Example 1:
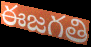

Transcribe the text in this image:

ఈజగతి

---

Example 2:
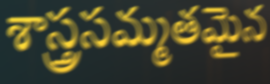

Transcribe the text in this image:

శాస్త్రసమ్మతమైన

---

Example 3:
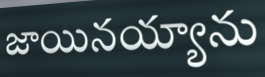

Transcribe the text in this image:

జాయినయ్యాను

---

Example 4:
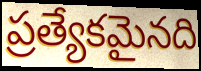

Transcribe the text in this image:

ప్రత్యేకమైనది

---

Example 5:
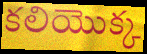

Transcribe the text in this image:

కలియొక్క